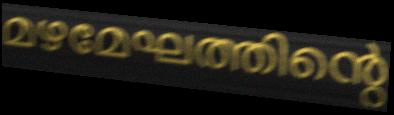
മഴമേഘത്തിന്റെ